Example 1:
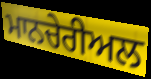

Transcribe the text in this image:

ਮਾਨਚੇਰੀਅਲ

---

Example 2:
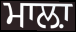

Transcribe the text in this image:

ਮਾਲ਼ਾ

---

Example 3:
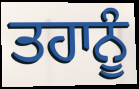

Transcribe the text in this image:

ਤਹਾਨੂੰ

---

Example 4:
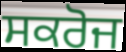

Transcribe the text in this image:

ਸਕਰੋਜ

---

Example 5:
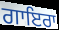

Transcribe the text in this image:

ਗਾਇਰਾ